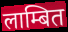
लाम्बित